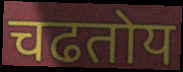
चढतोय